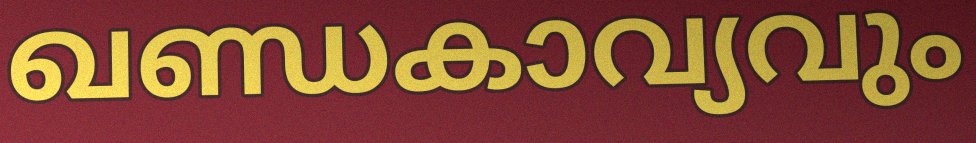
ഖണ്ഡകാവ്യവും